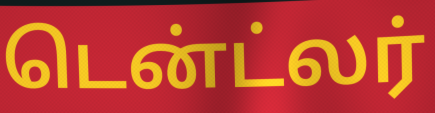
டென்ட்லர்